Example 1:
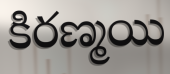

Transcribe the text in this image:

కిరణ్మయి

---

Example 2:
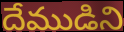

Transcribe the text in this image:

దేముడిని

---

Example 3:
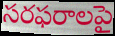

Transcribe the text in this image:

సరఫరాలపై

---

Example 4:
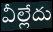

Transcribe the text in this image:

వీల్లేదు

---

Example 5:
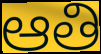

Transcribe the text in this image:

ఆతి